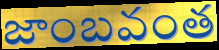
జాంబవంత